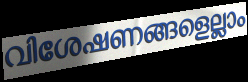
വിശേഷണങ്ങളെല്ലാം